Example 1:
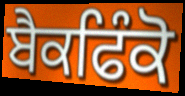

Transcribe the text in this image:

ਬੈਕਫਿੰਕੋ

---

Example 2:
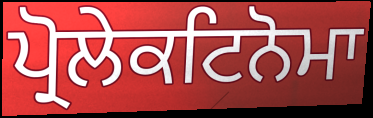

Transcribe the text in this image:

ਪ੍ਰੋਲੇਕਟਿਨੋਮਾ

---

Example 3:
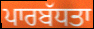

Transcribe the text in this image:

ਪਾਰਬੱਧਤਾ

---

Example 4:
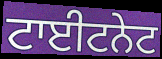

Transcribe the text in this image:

ਟਾਈਟਨੇਟ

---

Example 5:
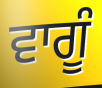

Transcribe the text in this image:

ਵਾਗੂੰ